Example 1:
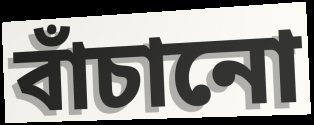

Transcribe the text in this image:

বাঁচানো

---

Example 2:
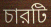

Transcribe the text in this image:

চারটি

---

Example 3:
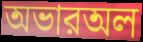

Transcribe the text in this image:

অভারঅল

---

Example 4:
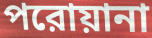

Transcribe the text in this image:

পরোয়ানা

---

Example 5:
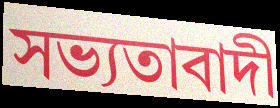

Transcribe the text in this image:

সভ্যতাবাদী